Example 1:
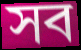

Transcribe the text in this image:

সব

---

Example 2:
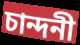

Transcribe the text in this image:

চান্দনী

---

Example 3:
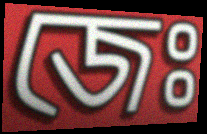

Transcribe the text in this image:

জেঃ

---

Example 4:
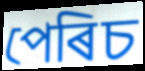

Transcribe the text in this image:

পেৰিচ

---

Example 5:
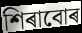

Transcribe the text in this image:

শিৰাবোৰ